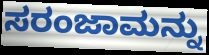
ಸರಂಜಾಮನ್ನು